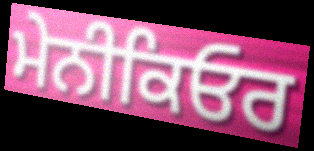
ਮੇਨੀਕਿਓਰ